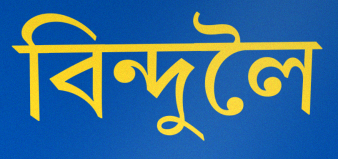
বিন্দুলৈ